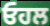
ਓਹਲ